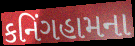
કનિંગહામના